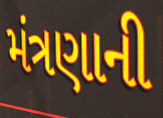
મંત્રણાની